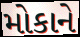
મોકાને